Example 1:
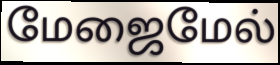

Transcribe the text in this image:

மேஜைமேல்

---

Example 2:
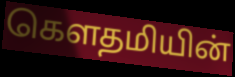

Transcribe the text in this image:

கெளதமியின்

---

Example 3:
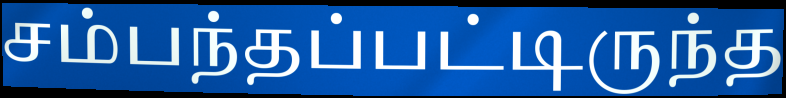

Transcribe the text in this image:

சம்பந்தப்பட்டிருந்த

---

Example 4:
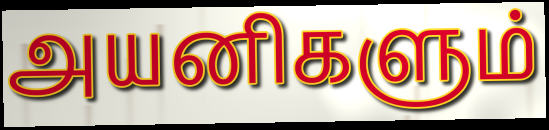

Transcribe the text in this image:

அயனிகளும்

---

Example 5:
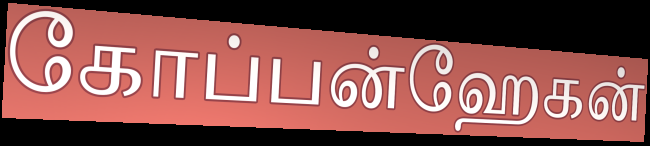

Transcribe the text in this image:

கோப்பன்ஹேகன்